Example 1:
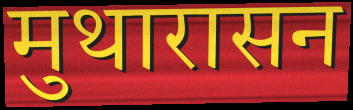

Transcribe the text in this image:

मुथारासन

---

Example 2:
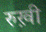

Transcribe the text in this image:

रुख़ी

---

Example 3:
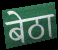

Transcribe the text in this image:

बेठा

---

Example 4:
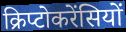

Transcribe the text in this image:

क्रिप्टोकरेंसियों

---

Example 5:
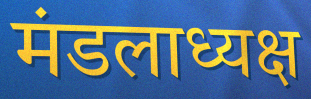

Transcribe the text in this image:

मंडलाध्यक्ष